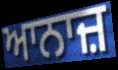
ਆਨਾਜ਼